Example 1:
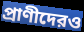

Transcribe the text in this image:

প্রাণীদেরও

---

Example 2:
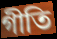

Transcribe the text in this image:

গীতি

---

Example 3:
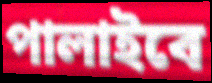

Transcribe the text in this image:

পালাইবে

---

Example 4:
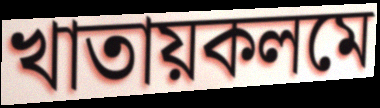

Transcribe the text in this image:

খাতায়কলমে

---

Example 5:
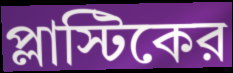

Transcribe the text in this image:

প্লাস্টিকের